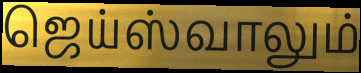
ஜெய்ஸ்வாலும்